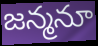
జన్మనూ